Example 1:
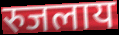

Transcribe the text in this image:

रुजलाय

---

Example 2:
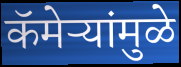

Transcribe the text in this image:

कॅमेऱ्यांमुळे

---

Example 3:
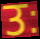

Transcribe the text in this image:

उः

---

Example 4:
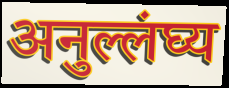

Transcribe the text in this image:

अनुल्लंघ्य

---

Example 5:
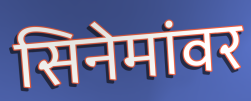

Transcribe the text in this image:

सिनेमांवर